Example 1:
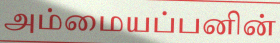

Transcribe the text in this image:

அம்மையப்பனின்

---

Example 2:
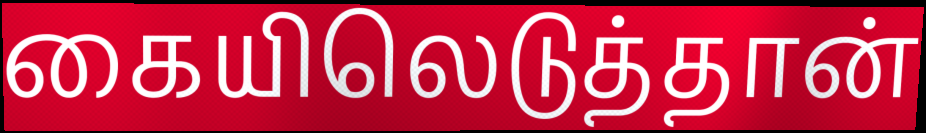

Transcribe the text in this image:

கையிலெடுத்தான்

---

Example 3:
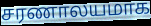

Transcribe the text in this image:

சரணாலயமாக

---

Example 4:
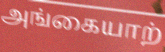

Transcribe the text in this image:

அங்கையாற்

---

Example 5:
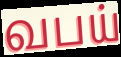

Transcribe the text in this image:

வபய்